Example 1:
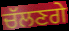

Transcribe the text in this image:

ਚੱਲਣਗੇ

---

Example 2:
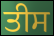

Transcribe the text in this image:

ਤੀਸ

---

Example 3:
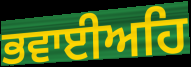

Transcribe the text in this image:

ਭਵਾਈਅਹਿ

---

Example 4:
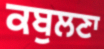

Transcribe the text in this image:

ਕਬੁਲਣਾ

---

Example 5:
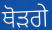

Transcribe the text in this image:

ਥੋੜਗੇ